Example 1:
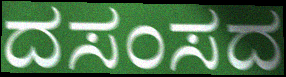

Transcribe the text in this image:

ದಸಂಸದ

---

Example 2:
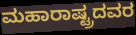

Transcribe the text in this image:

ಮಹಾರಾಷ್ಟ್ರದವರ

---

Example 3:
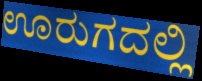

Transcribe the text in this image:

ಊರುಗದಲ್ಲಿ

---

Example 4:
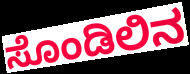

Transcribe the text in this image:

ಸೊಂಡಿಲಿನ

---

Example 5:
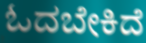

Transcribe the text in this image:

ಓದಬೇಕಿದೆ